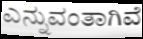
ಎನ್ನುವಂತಾಗಿವೆ